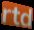
rtd